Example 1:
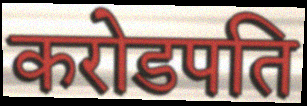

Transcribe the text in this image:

करोडपति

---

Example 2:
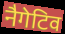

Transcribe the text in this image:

नैगेटिव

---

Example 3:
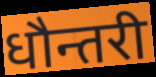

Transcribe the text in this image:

धौन्तरी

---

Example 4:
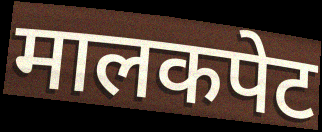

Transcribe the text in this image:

मालकपेट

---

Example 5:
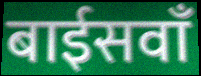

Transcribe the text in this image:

बाईसवाँ